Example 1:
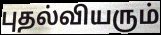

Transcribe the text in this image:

புதல்வியரும்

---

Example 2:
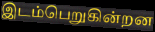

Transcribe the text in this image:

இடம்பெறுகின்றன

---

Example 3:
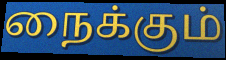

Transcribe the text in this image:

நைக்கும்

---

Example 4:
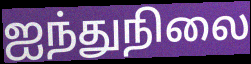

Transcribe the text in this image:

ஐந்துநிலை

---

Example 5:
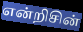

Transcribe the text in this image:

என்றிசின்